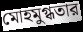
মোহমুগ্ধতার